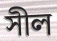
সীল